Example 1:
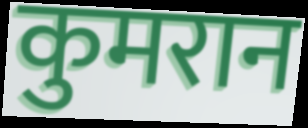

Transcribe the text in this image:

कुमरान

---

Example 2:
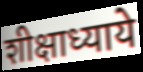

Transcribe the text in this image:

शीक्षाध्याये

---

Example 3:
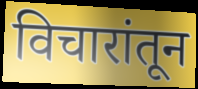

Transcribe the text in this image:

विचारांतून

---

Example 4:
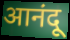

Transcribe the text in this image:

आनंदू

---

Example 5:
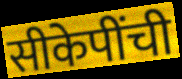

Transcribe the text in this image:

सीकेपींची